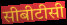
सीबीटीसी